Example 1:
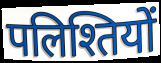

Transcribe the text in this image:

पलिश्तियों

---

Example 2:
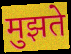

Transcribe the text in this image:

मुझते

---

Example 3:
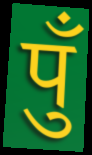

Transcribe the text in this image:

पुँ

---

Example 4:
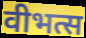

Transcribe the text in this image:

वीभत्स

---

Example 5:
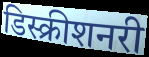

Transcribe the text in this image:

डिस्क्रीशनरी